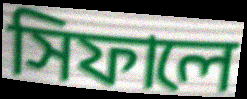
সিফালে